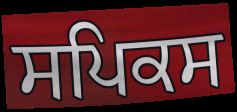
ਸਪਿਕਸ